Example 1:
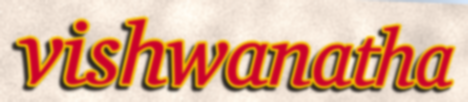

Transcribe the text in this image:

vishwanatha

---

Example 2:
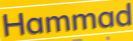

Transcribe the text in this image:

Hammad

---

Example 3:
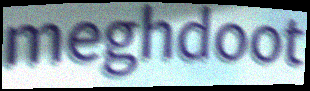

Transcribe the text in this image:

meghdoot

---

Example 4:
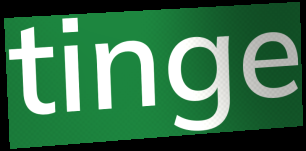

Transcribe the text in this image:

tinge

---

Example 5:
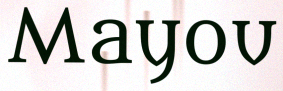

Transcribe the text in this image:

Mayou